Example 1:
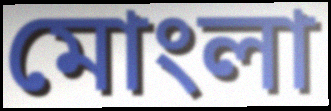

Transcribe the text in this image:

মোংলা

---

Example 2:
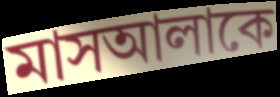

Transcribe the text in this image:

মাসআলাকে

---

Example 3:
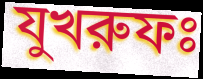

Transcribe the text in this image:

যুখরুফঃ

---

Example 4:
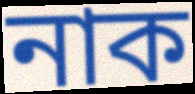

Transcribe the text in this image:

নাক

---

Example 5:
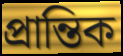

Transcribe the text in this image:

প্রান্তিক